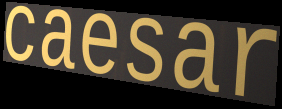
caesar